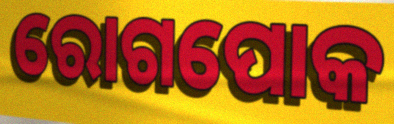
ରୋଗପୋକ